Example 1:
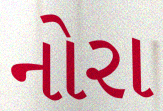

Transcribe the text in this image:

નોરા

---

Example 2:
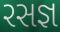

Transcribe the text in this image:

રસજ્ઞ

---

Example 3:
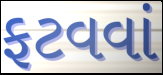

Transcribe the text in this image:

ફટવવાં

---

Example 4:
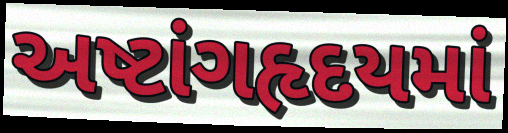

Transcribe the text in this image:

અષ્ટાંગહૃદયમાં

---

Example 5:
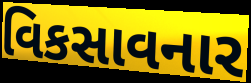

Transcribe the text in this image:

વિકસાવનાર